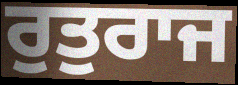
ਰੁਤੁਰਾਜ